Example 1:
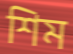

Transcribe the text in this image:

শিম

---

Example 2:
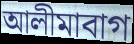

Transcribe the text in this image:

আলীমাবাগ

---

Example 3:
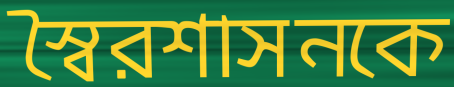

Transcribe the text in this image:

স্বৈরশাসনকে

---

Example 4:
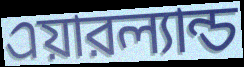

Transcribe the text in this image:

এয়ারল্যান্ড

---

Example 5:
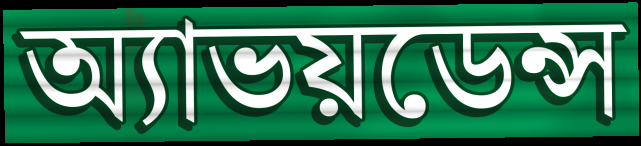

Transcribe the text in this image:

অ্যাভয়ডেন্স